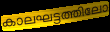
കാലഘട്ടത്തിലോ